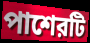
পাশেরটি